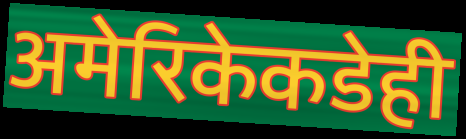
अमेरिकेकडेही